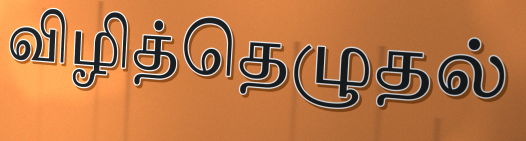
விழித்தெழுதல்